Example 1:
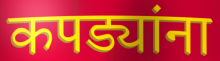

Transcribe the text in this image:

कपड्यांना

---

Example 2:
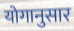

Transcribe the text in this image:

योगानुसार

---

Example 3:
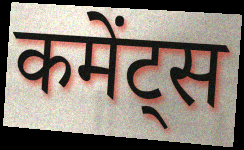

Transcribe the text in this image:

कमेंट्स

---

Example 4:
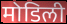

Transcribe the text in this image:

मोडिली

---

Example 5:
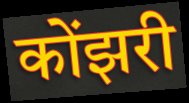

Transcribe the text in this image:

कोंझरी